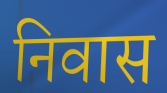
निवास